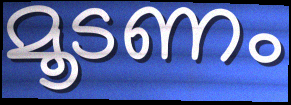
മൂടണം